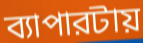
ব্যাপারটায়